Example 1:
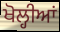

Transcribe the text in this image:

ਖੋਲ੍ਹੀਆਂ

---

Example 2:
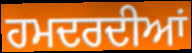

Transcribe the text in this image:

ਹਮਦਰਦੀਆਂ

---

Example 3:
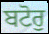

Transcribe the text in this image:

ਬਟੋਰੁ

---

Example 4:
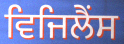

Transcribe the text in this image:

ਵਿਜਿਲੈਂਸ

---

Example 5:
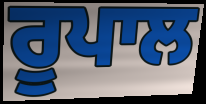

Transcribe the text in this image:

ਰੂਪਾਲ